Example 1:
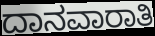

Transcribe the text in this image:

ದಾನವಾರಾತಿ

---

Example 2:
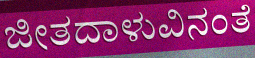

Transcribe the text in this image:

ಜೀತದಾಳುವಿನಂತೆ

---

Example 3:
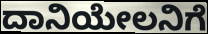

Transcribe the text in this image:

ದಾನಿಯೇಲನಿಗೆ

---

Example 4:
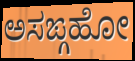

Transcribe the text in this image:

ಅಸಙ್ಗಹೋ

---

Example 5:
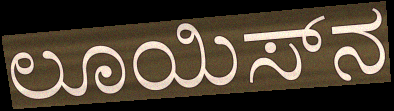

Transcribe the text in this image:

ಲೂಯಿಸ್‌ನ